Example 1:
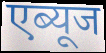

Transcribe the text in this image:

एब्यूज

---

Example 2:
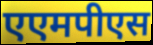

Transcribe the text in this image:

एएमपीएस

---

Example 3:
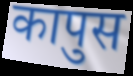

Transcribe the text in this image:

कापुस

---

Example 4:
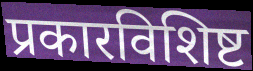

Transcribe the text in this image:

प्रकारविशिष्ट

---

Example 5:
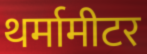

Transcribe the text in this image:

थर्मामीटर